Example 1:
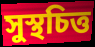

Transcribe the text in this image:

সুস্থচিত্ত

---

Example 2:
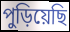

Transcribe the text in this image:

পুড়িয়েছি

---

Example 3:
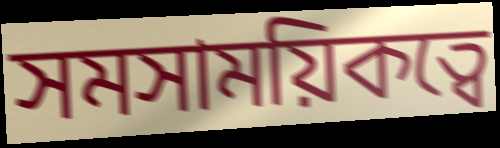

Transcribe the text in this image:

সমসাময়িকত্বে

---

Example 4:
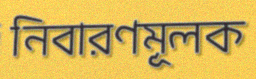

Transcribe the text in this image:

নিবারণমূলক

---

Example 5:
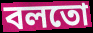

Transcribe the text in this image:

বলতো